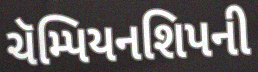
ચૅમ્પિયનશિપની